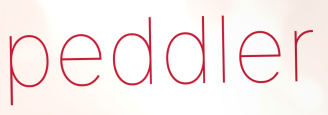
peddler